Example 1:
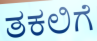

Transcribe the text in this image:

ತಕಲಿಗೆ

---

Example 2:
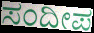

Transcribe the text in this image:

ಸಂದೀಪ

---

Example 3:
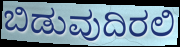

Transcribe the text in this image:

ಬಿಡುವುದಿರಲಿ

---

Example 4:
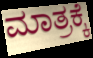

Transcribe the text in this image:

ಮಾತ್ರಕ್ಕೆ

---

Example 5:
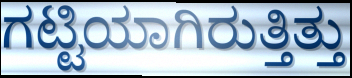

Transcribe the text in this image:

ಗಟ್ಟಿಯಾಗಿರುತ್ತಿತ್ತು